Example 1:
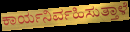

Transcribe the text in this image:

ಕಾರ್ಯನಿರ್ವಹಿಸುತ್ತಾಳೆ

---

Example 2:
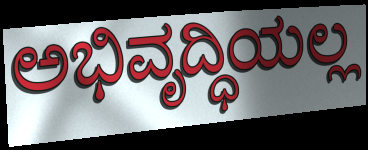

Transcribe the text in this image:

ಅಭಿವೃದ್ಧಿಯಲ್ಲ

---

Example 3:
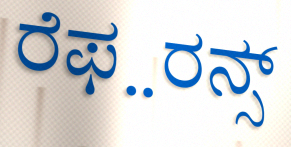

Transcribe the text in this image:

ರೆಫ಼ರನ್ಸ್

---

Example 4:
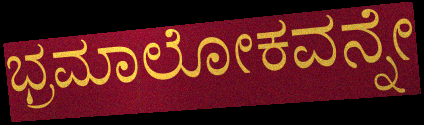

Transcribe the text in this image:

ಭ್ರಮಾಲೋಕವನ್ನೇ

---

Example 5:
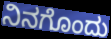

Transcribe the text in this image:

ನಿನಗೊಂದು